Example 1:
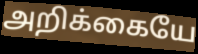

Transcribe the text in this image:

அறிக்கையே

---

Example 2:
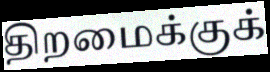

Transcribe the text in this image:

திறமைக்குக்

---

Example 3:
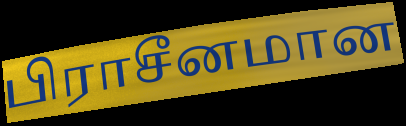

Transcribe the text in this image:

பிராசீனமான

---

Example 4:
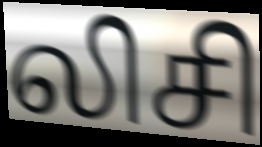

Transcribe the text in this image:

லிசி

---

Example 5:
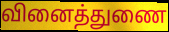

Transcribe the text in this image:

வினைத்துணை